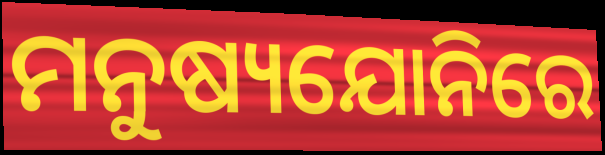
ମନୁଷ୍ୟଯୋନିରେ